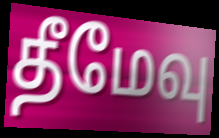
தீமேவு